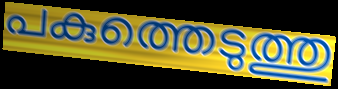
പകുത്തെടുത്തു